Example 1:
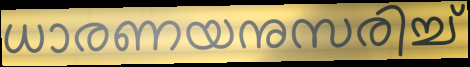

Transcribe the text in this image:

ധാരണയനുസരിച്ച്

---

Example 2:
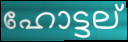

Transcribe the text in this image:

ഹോട്ടല്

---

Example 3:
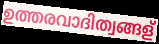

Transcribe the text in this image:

ഉത്തരവാദിത്വങ്ങള്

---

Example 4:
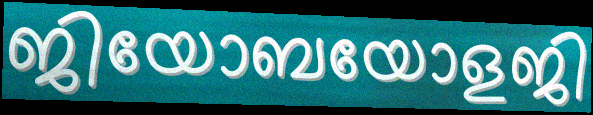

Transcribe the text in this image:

ജിയോബയോളജി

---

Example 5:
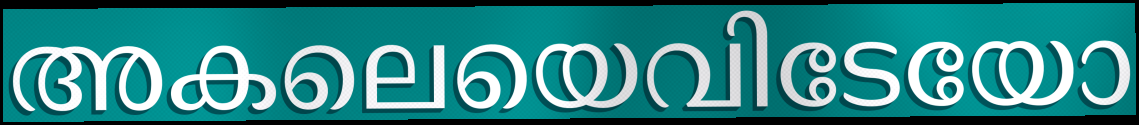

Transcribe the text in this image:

അകലെയെവിടേയോ